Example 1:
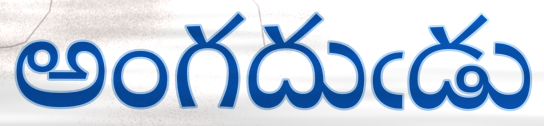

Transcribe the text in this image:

అంగదుఁడు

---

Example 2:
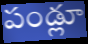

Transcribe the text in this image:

పండ్లూ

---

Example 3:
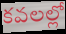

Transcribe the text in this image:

కవలల్లో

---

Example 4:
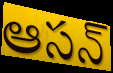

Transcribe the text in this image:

ఆసన్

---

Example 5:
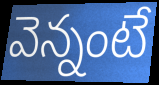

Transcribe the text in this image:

వెన్నంటే